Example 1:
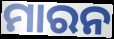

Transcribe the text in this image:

ମାରନ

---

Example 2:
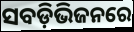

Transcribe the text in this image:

ସବଡ଼ିଭିଜନରେ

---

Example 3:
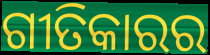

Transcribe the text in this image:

ଗୀତିକାରର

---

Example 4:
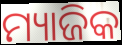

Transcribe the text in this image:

ମ୍ୟାଜିକ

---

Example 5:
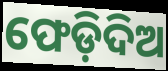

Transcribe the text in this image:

ଫେଡ଼ିଦିଅ